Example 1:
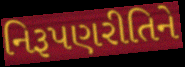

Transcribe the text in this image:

નિરૂપણરીતિને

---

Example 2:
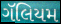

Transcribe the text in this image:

ગૅલિયમ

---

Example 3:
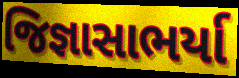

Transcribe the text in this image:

જિજ્ઞાસાભર્યા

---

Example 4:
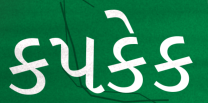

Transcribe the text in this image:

કપકેક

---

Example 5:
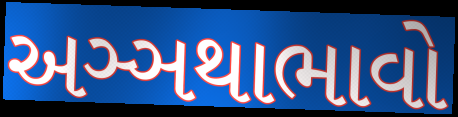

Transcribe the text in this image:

અઞ્ઞથાભાવો